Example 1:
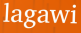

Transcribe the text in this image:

lagawi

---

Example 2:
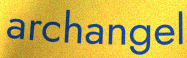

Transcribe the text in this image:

archangel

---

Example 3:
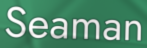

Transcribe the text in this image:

Seaman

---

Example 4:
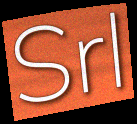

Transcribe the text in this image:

Srl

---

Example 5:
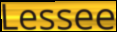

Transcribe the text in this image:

Lessee